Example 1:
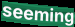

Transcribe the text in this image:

seeming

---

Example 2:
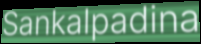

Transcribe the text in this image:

Sankalpadina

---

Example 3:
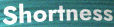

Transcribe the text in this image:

Shortness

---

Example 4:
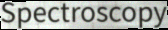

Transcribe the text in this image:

Spectroscopy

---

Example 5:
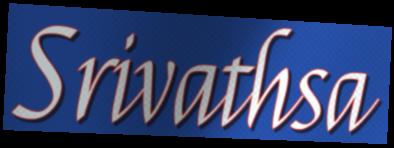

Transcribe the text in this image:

Srivathsa